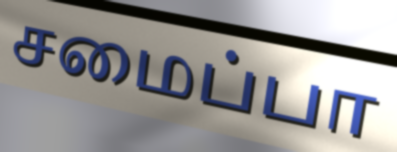
சமைப்பா